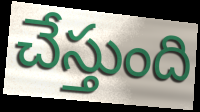
చేస్తుంది